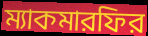
ম্যাকমারফির